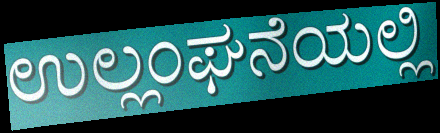
ಉಲ್ಲಂಘನೆಯಲ್ಲಿ